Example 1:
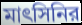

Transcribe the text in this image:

মাৎসিনির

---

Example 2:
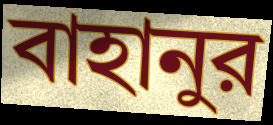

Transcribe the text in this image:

বাহানুর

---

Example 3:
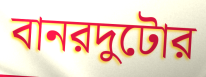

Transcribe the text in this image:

বানরদুটোর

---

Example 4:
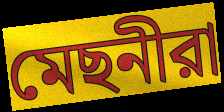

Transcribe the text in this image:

মেছনীরা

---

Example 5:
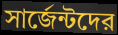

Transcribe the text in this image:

সার্জেন্টদের